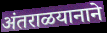
अंतराळयानाने